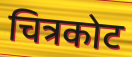
चित्रकोट